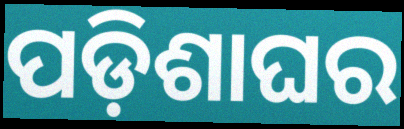
ପଡ଼ିଶାଘର